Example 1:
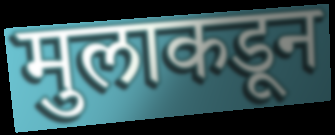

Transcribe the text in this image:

मुलाकडून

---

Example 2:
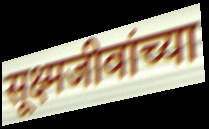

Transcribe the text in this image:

सूक्ष्मजीवांच्या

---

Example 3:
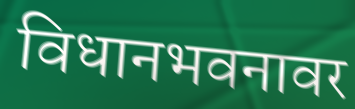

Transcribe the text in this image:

विधानभवनावर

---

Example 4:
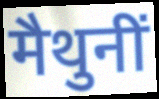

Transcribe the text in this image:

मैथुनीं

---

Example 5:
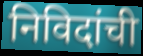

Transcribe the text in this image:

निविदांची